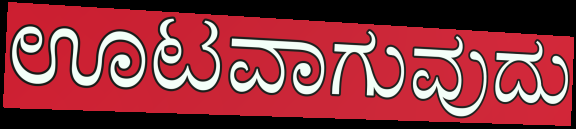
ಊಟವಾಗುವುದು